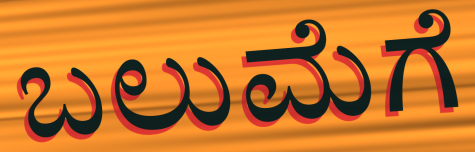
ಬಲುಮೆಗೆ